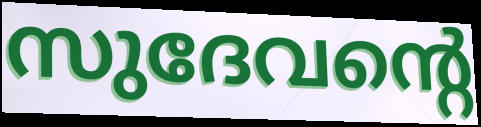
സുദേവന്റെ